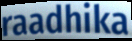
raadhika